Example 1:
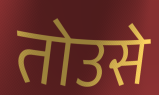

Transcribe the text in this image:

तोउसे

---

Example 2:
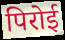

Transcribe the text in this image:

पिरोई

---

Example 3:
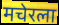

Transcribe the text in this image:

मचेरला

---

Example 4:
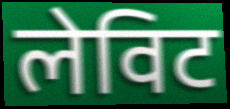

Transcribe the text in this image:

लेविट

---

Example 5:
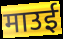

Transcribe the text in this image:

माउई